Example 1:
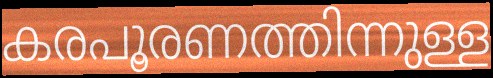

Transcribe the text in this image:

കരപൂരണത്തിന്നുള്ള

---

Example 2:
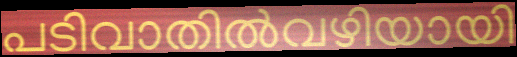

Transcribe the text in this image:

പടിവാതിൽവഴിയായി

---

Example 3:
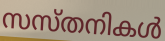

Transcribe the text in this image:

സസ്തനികൾ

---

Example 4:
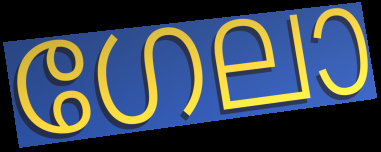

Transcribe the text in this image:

ഗേലാ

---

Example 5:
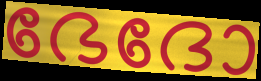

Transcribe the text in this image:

ഭേദോ